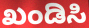
ಖಂಡಿಸಿ